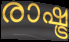
രാഷ്ട്ര